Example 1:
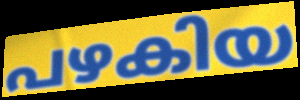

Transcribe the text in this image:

പഴകിയ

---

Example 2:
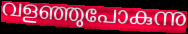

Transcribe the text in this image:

വളഞ്ഞുപോകുന്നു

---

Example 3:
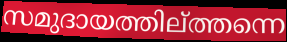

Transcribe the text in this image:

സമുദായത്തില്ത്തന്നെ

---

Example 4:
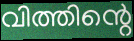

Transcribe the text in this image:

വിത്തിന്റെ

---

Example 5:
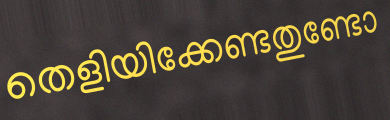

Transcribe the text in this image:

തെളിയിക്കേണ്ടതുണ്ടോ